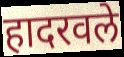
हादरवले